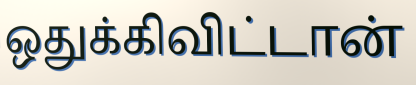
ஒதுக்கிவிட்டான்